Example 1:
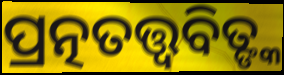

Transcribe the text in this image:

ପ୍ରତ୍ନତତ୍ତ୍ୱବିତ୍ଙ୍କ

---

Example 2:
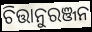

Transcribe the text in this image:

ଚିତ୍ତାନୁରଞ୍ଜନ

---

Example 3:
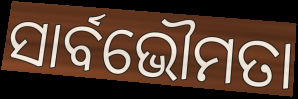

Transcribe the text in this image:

ସାର୍ବଭୌମତା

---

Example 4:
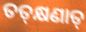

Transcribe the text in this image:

ତତ୍‍କ୍ଷଣାତ୍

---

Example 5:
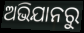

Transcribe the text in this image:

ଅଭିଯାନରୁ